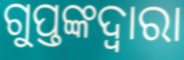
ଗୁପ୍ତଙ୍କଦ୍ୱାରା